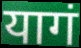
यागं